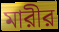
মারীর